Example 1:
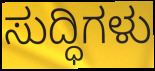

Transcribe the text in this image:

ಸುದ್ಧಿಗಳು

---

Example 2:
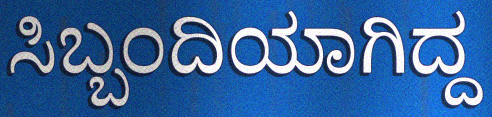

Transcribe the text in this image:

ಸಿಬ್ಬಂದಿಯಾಗಿದ್ದ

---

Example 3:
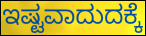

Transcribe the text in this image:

ಇಷ್ಟವಾದುದಕ್ಕೆ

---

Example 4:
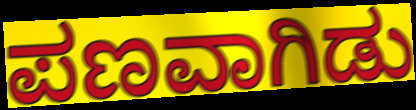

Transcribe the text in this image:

ಪಣವಾಗಿಡು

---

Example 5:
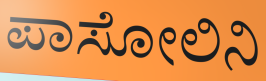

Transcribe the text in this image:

ಪಾಸೋಲಿನಿ